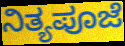
ನಿತ್ಯಪೂಜೆ